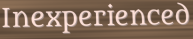
Inexperienced